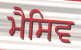
ਮੈਸਿਵ